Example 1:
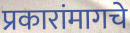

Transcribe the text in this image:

प्रकारांमागचे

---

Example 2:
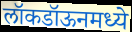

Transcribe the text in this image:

लॉकडॉऊनमध्ये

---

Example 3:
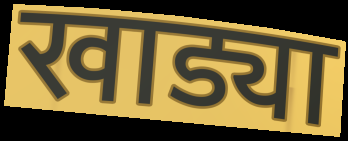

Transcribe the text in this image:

खाड्या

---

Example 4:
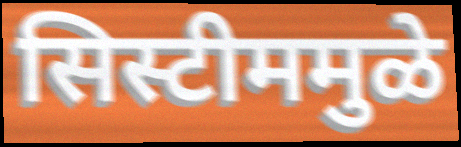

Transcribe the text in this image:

सिस्टीममुळे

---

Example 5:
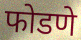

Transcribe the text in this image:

फोडणे